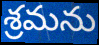
శ్రమను